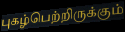
புகழ்பெற்றிருக்கும்